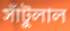
সাঁটুলাল